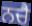
ਨਚੈ